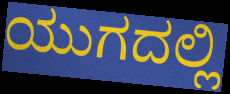
ಯುಗದಲ್ಲಿ